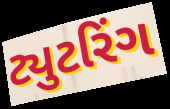
ટ્યુટરિંગ